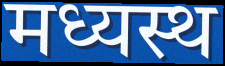
मध्यस्थ